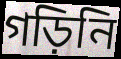
গড়িনি